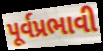
પૂર્વપ્રભાવી